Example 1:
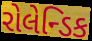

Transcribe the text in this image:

રોલેન્ડિક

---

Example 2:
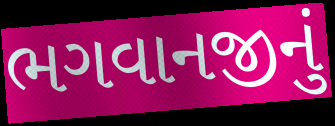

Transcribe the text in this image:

ભગવાનજીનું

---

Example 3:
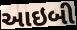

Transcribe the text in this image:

આઇબી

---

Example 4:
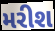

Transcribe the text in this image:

મરીશ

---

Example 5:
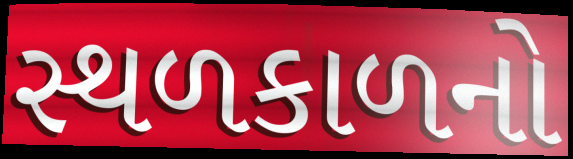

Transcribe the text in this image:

સ્થળકાળનો